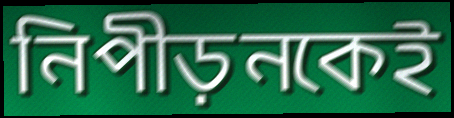
নিপীড়নকেই